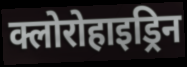
क्लोरोहाइड्रिन